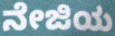
ನೇಜಿಯ